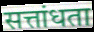
सत्तांधता